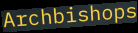
Archbishops